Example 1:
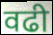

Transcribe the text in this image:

वढी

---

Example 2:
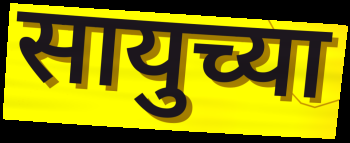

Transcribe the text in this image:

सायुच्या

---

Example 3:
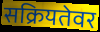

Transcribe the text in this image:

सक्रियतेवर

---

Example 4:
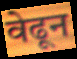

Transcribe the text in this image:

वेढून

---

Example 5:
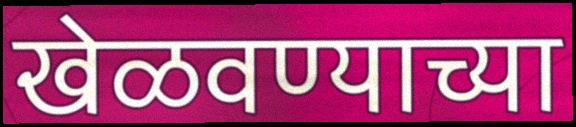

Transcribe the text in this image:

खेळवण्याच्या